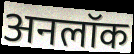
अनलॉक